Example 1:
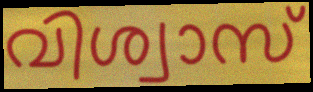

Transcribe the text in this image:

വിശ്വാസ്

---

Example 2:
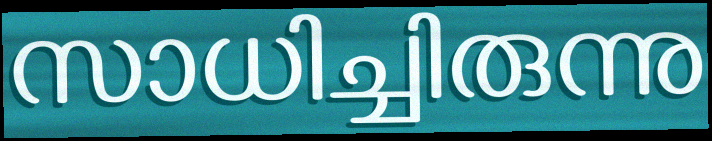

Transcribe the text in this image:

സാധിച്ചിരുന്നു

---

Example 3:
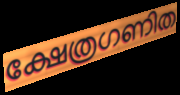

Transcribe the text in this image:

ക്ഷേത്രഗണിത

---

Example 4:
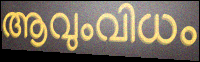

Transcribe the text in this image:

ആവുംവിധം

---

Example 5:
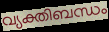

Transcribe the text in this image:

വ്യക്തിബന്ധം